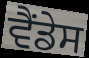
ਵੈਂਡੇਸ